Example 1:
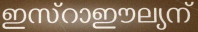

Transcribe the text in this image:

ഇസ്റാഈല്യന്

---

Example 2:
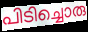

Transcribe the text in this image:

പിടിച്ചൊരു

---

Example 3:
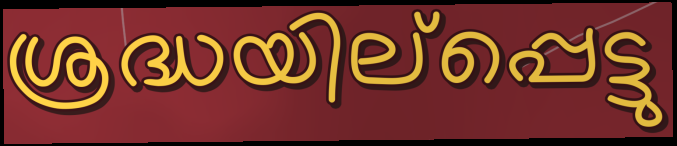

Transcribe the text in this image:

ശ്രദ്ധയില്പ്പെട്ടു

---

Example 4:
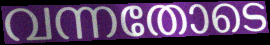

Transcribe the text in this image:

വന്നതോടെ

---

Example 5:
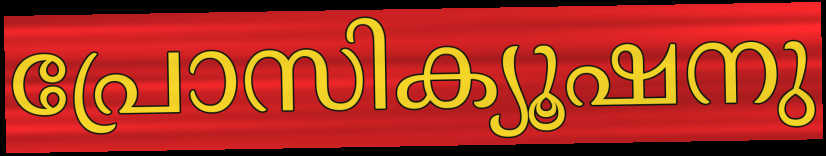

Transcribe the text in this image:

പ്രോസിക്യൂഷനു